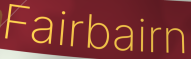
Fairbairn